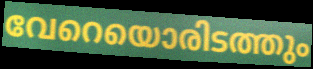
വേറെയൊരിടത്തും